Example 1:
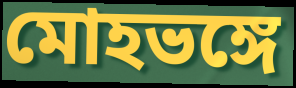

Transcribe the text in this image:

মোহভঙ্গে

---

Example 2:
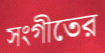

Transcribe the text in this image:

সংগীতের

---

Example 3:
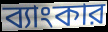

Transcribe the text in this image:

ব্যাংকার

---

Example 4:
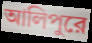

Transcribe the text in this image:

আলিপুরে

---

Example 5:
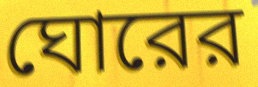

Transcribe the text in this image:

ঘোরের